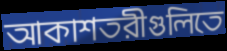
আকাশতরীগুলিতে